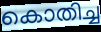
കൊതിച്ച